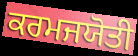
ਕਰਮਜਯੋਤੀ